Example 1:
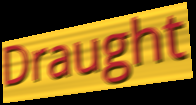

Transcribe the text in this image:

Draught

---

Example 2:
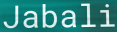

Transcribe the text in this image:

Jabali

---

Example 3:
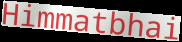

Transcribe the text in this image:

Himmatbhai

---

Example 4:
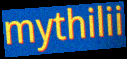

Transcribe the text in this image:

mythilii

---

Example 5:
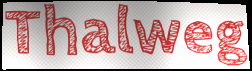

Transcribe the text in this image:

Thalweg